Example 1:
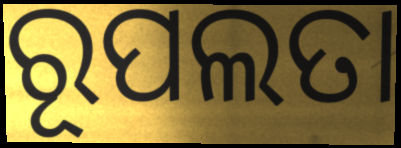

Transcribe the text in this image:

ରୂପଲତା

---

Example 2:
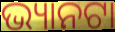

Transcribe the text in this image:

ଭ୍ୟାନଟା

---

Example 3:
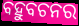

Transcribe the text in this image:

ବହୁବଚନର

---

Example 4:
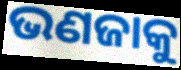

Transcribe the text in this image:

ଭଣଜାକୁ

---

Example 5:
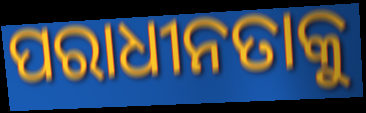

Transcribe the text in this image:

ପରାଧୀନତାକୁ